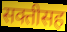
सक्तीसह